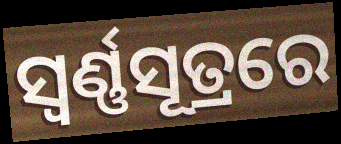
ସ୍ୱର୍ଣ୍ଣସୂତ୍ରରେ